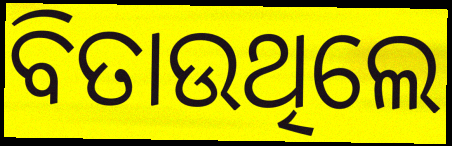
ବିତାଉଥିଲେ